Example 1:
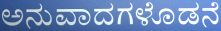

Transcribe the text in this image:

ಅನುವಾದಗಳೊಡನೆ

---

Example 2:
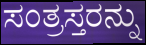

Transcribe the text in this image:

ಸಂತ್ರಸ್ತರನ್ನು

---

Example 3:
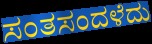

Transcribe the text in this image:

ಸಂತಸಂದಳೆದು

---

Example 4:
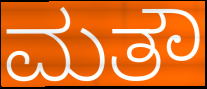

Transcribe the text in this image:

ಮತೌ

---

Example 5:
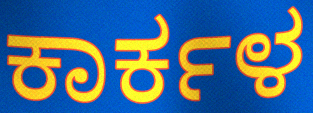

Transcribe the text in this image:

ಕಾರ್ಕಳ